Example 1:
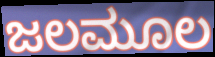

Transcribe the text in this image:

ಜಲಮೂಲ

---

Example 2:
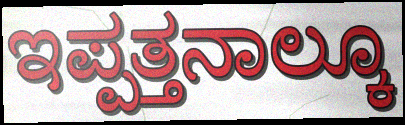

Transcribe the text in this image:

ಇಪ್ಪತ್ತನಾಲ್ಕೂ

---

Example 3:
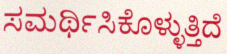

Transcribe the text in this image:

ಸಮರ್ಥಿಸಿಕೊಳ್ಳುತ್ತಿದೆ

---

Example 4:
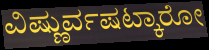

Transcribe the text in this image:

ವಿಷ್ಣುರ್ವಷಟ್ಕಾರೋ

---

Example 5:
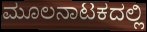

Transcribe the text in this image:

ಮೂಲನಾಟಕದಲ್ಲಿ